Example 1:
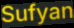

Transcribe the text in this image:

Sufyan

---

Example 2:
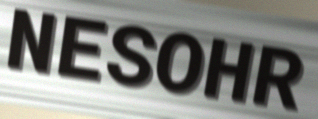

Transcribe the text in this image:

NESOHR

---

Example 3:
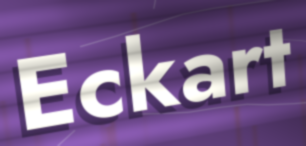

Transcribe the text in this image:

Eckart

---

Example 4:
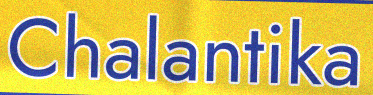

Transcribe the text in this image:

Chalantika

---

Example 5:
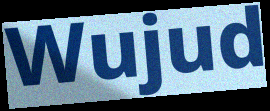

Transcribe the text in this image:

Wujud